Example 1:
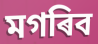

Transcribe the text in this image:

মগৰিব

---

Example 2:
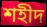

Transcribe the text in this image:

শহীদ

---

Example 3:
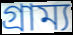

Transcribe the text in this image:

গ্ৰাম্য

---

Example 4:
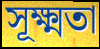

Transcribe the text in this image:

সূক্ষ্মতা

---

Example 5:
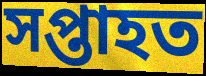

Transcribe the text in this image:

সপ্তাহত